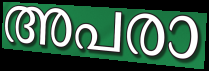
അപരാ